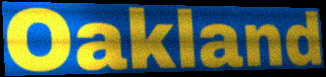
Oakland